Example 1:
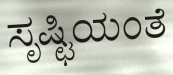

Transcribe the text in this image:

ಸೃಷ್ಟಿಯಂತೆ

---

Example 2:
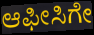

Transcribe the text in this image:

ಆಫೀಸಿಗೇ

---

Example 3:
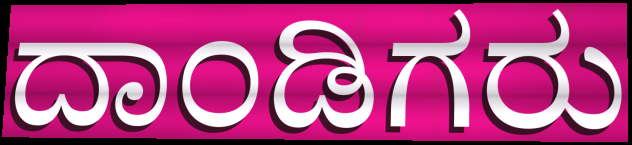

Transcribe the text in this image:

ದಾಂಡಿಗರು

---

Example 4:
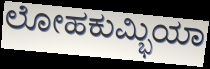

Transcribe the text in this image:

ಲೋಹಕುಮ್ಭಿಯಾ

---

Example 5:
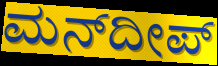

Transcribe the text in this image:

ಮನ್‍ದೀಪ್